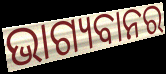
ଭାଗ୍ୟବାନର